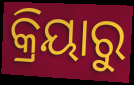
କ୍ରିୟାରୁ